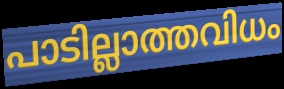
പാടില്ലാത്തവിധം